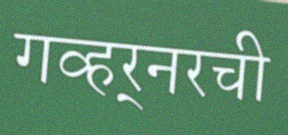
गव्हर्नरची